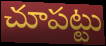
చూపట్టు